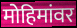
मोहिमांवर